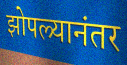
झोपल्यानंतर